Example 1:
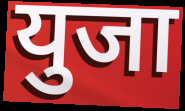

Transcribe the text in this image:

युजा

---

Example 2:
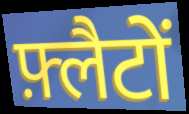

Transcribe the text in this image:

फ़्लैटों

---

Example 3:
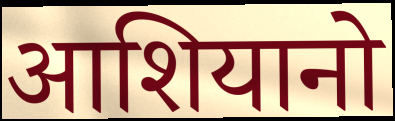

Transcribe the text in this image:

आशियानो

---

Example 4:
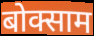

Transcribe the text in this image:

बोक्साम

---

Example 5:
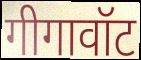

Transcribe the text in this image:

गीगावॉट